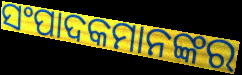
ସଂପାଦକମାନଙ୍କର